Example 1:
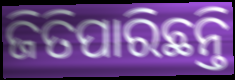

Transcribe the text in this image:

ଜିତିପାରିଛନ୍ତି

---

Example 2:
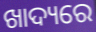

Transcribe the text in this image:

ଖାଦ୍ୟରେ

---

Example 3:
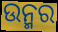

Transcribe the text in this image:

ଉନ୍ମର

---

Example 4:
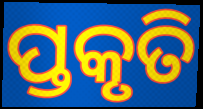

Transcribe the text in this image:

ପ୍ତକୃତି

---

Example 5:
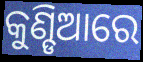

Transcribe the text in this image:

କୁଣ୍ଡିଆରେ